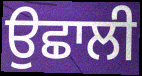
ਉਛਾਲੀ